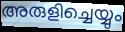
അരുളിച്ചെയ്യും